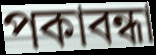
পকাবন্ধা